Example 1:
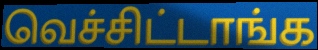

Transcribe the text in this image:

வெச்சிட்டாங்க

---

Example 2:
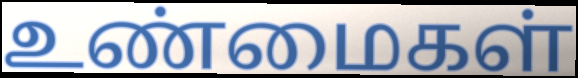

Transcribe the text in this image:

உண்மைகள்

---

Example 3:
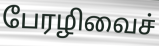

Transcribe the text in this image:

பேரழிவைச்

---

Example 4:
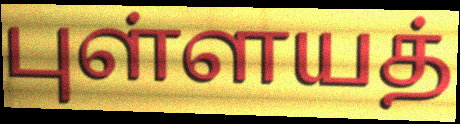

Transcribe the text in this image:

புள்ளயத்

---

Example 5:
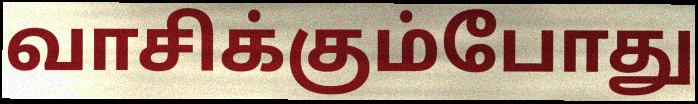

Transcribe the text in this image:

வாசிக்கும்போது